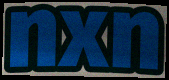
nxn